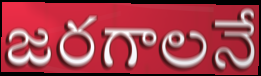
జరగాలనే